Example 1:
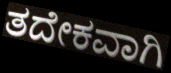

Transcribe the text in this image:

ತದೇಕವಾಗಿ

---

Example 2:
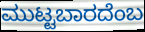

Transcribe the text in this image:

ಮುಟ್ಟಬಾರದೆಂಬ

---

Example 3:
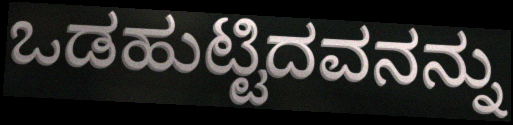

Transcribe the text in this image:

ಒಡಹುಟ್ಟಿದವನನ್ನು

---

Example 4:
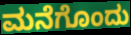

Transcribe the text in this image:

ಮನೆಗೊಂದು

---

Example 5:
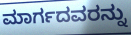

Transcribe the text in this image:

ಮಾರ್ಗದವರನ್ನು